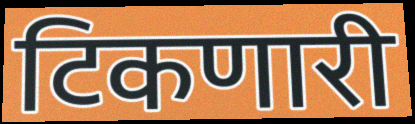
टिकणारी